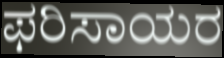
ಫರಿಸಾಯರ